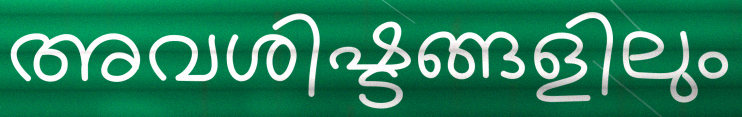
അവശിഷ്ടങ്ങളിലും